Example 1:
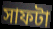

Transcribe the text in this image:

সাফটা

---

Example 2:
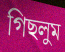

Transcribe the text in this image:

গিছলুম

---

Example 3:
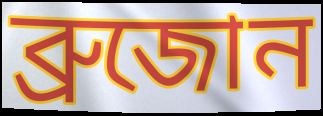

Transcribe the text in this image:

ব্রুজোন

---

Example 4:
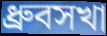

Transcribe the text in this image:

ধ্রুবসখা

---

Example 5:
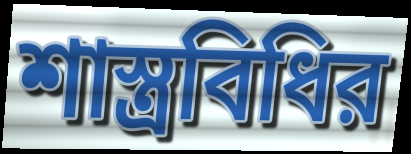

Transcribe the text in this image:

শাস্ত্রবিধির